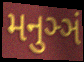
મનુઞ્ઞં